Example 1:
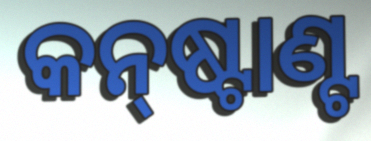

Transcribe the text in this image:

କନ୍‌ଷ୍ଟାଣ୍ଟ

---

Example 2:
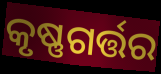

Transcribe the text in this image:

କୃଷ୍ଣଗର୍ତ୍ତର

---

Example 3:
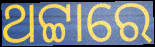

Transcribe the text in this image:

ଥଟ୍ଟାରେ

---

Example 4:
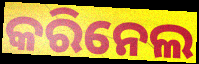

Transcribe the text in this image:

କରିନେଲ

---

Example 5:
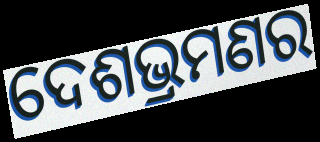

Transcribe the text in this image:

ଦେଶଭ୍ରମଣର